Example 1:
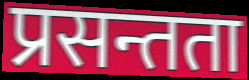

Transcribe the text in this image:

प्रसन्तता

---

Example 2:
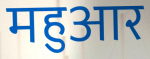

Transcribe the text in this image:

महुआर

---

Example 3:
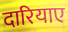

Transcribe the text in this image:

दारियाए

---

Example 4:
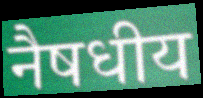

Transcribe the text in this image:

नैषधीय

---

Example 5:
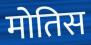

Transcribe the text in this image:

मोतिस